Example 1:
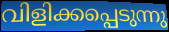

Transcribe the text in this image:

വിളിക്കപ്പെടുന്നു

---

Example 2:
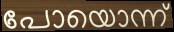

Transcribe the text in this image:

പോയൊന്ന്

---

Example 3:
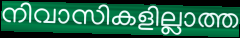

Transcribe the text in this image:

നിവാസികളില്ലാത്ത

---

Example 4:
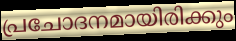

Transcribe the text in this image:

പ്രചോദനമായിരിക്കും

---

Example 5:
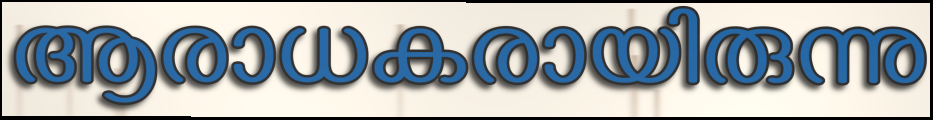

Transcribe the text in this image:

ആരാധകരായിരുന്നു